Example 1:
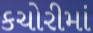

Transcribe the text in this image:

કચોરીમાં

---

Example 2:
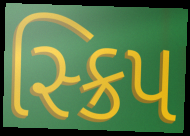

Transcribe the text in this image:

સ્ક્રિપ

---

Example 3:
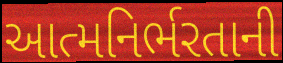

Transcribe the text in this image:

આત્મનિર્ભરતાની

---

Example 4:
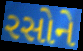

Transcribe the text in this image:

રસોને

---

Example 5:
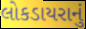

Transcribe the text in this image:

લોકડાયરાનું